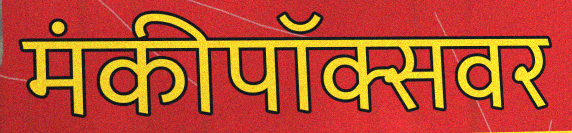
मंकीपॉक्सवर